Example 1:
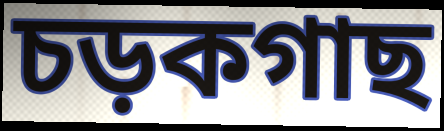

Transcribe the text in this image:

চড়কগাছ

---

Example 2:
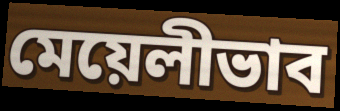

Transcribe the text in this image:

মেয়েলীভাব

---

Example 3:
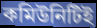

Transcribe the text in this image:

কমিউনিটিই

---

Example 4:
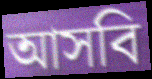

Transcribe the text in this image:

আসবি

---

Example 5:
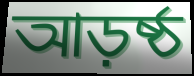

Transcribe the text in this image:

আড়ষ্ঠ